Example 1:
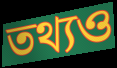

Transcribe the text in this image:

তথ্যও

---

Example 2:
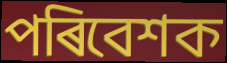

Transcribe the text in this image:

পৰিবেশক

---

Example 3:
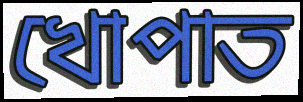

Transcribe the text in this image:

খোপাত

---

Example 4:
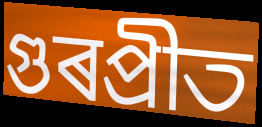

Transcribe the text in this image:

গুৰপ্ৰীত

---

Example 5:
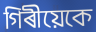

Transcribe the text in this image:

গিৰীয়েকে